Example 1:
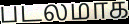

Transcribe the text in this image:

படலமாக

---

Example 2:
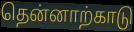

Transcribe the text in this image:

தென்னாற்காடு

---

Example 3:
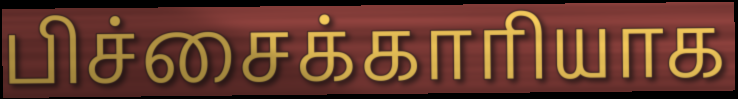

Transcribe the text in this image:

பிச்சைக்காரியாக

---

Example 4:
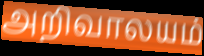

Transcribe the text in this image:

அறிவாலயம்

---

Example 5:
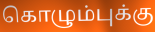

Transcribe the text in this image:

கொழும்புக்கு